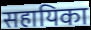
सहायिका